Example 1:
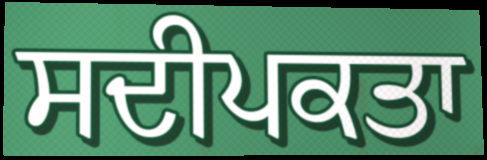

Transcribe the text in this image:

ਸਦੀਪਕਤਾ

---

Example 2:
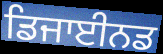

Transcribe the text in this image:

ਡਿਜਾਈਨਡ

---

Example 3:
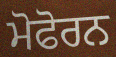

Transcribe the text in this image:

ਮੋਫੋਰਨ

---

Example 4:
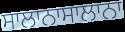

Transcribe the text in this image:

ਸਾਲਾਨਾਸਾਲਾਨਾ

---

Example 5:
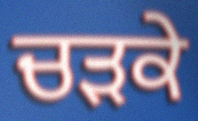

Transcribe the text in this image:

ਚੜਕੇ